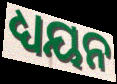
ଧ୍ୟୟନ